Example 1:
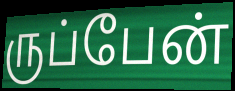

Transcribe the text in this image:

ருப்பேன்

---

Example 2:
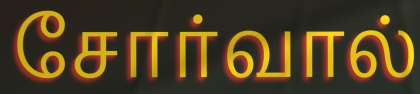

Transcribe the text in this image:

சோர்வால்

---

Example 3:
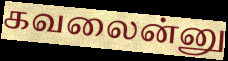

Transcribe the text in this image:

கவலைன்னு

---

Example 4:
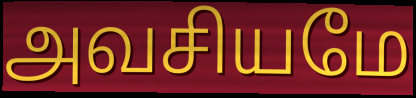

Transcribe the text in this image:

அவசியமே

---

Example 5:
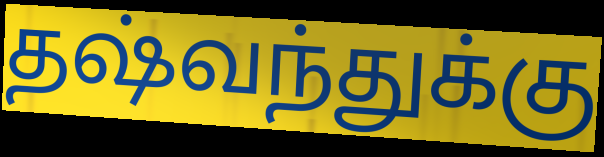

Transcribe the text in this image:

தஷ்வந்துக்கு